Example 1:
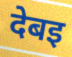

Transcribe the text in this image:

देबइ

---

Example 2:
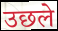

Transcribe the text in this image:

उछले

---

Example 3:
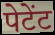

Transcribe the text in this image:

पेटेंट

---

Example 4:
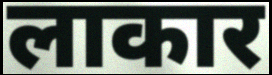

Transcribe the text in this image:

लाकार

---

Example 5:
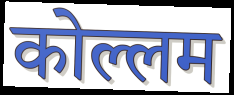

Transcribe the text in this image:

कोल्लम